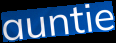
auntie